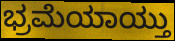
ಭ್ರಮೆಯಾಯ್ತು